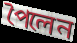
পৈলেন